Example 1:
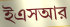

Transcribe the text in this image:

ইএসআর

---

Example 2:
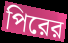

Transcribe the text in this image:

পিরের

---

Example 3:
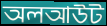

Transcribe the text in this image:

অলআউট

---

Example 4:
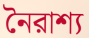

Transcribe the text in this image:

নৈরাশ্য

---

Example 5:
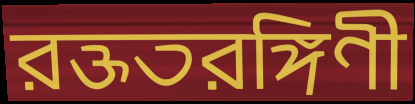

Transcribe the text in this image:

রক্ততরঙ্গিণী